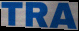
TRA